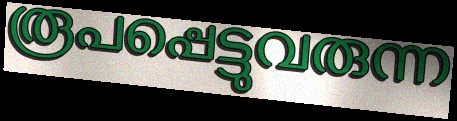
രൂപപ്പെട്ടുവരുന്ന